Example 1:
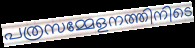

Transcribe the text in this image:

പത്രസമ്മേളനത്തിനിടെ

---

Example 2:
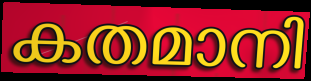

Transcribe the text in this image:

കതമാനി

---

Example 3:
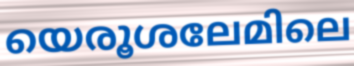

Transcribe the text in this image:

യെരൂശലേമിലെ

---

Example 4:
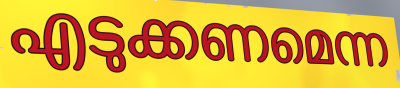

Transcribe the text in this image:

എടുക്കണമെന്ന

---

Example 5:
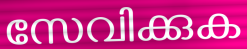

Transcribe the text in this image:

സേവിക്കുക